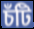
চঁটি